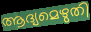
ആദ്യമെഴുതി